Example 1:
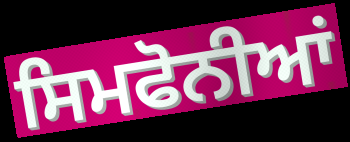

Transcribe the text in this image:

ਸਿਮਫੋਨੀਆਂ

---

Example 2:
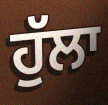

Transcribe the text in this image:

ਹੁੱਲਾ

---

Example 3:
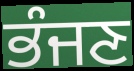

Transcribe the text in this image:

ਭੰਜਣ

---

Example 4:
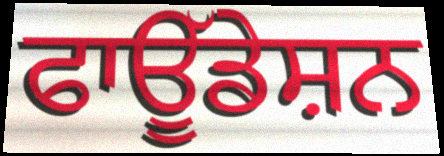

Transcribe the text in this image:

ਫਾਊੱਡੇਸ਼ਨ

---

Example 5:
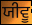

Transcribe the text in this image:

ਯੀਵੂ